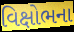
વિક્ષોભના